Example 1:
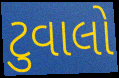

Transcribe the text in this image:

ટુવાલો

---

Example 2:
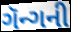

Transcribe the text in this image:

ગૅન્ગની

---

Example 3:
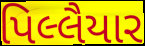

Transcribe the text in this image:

પિલ્લૈયાર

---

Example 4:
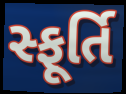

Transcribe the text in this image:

સ્ફૂર્તિ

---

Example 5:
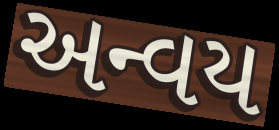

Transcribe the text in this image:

અન્વય